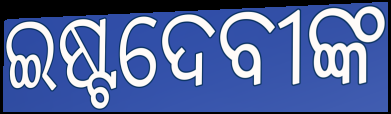
ଇଷ୍ଟଦେବୀଙ୍କ